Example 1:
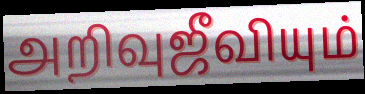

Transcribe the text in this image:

அறிவுஜீவியும்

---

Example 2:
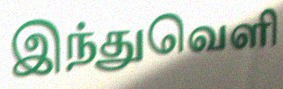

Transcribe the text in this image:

இந்துவெளி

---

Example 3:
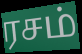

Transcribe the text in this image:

ரசம்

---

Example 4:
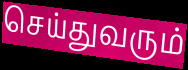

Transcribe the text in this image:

செய்துவரும்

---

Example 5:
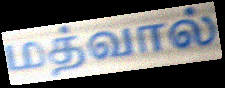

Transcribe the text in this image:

மத்வால்